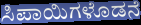
ಸಿಪಾಯಿಗಳೊಡನೆ